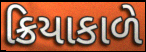
ક્રિયાકાળે